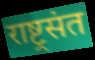
राष्ट्रसंत